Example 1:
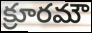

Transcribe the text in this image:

క్రూరమౌ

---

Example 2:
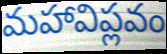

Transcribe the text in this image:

మహావిప్లవం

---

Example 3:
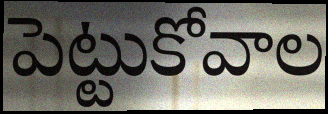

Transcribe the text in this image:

పెట్టుకోవాల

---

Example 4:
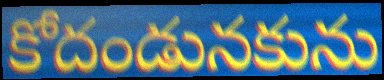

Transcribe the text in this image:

కోదండునకును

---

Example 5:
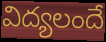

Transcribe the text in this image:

విద్యలందే